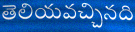
తెలియవచ్చినది